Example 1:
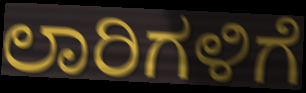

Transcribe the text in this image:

ಲಾರಿಗಳಿಗೆ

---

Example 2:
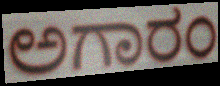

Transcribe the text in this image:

ಅಗಾರಂ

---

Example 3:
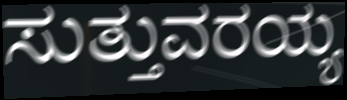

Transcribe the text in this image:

ಸುತ್ತುವರಯ್ಯ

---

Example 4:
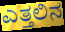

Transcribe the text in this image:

ಎತ್ತಲಿನ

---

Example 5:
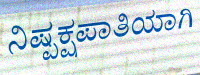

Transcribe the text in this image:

ನಿಷ್ಪಕ್ಷಪಾತಿಯಾಗಿ